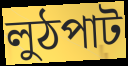
লুঠপাট